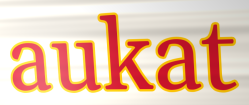
aukat